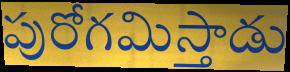
పురోగమిస్తాడు